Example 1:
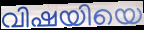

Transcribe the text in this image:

വിഷയിയെ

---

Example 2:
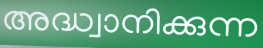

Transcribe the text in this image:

അദ്ധ്വാനിക്കുന്ന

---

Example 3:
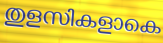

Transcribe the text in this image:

തുളസികളാകെ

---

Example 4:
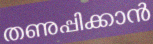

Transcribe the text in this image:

തണുപ്പിക്കാൻ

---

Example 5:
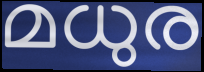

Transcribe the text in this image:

മധുര